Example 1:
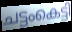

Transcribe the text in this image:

ചട്ടംകെട്ടി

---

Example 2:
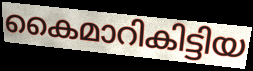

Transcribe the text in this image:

കൈമാറികിട്ടിയ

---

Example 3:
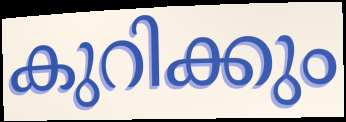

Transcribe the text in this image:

കുറിക്കും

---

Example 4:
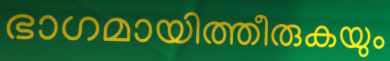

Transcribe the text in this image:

ഭാഗമായിത്തീരുകയും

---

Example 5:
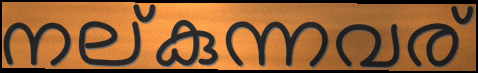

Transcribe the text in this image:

നല്കുന്നവര്